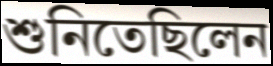
শুনিতেছিলেন